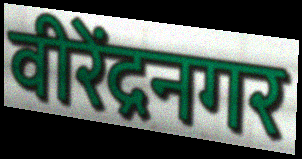
वीरेंद्रनगर